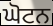
ਘੋਟਨ